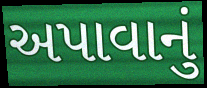
અપાવાનું